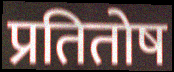
प्रतितोष